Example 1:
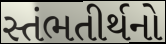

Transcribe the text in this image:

સ્તંભતીર્થનો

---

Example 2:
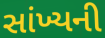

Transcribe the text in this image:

સાંખ્યની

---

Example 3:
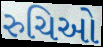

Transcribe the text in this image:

રુચિઓ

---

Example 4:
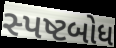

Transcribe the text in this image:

સ્પષ્ટબોધ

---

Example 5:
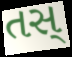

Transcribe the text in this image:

તસ્